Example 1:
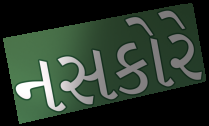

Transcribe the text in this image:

નસકોરે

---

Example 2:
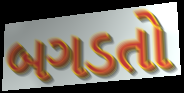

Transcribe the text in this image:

બગડતો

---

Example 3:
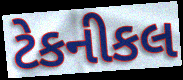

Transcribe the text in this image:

ટેકનીકલ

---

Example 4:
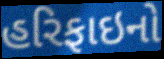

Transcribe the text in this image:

હરિફાઇનો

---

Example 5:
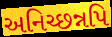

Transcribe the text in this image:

અનિચ્છન્નપિ